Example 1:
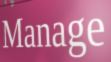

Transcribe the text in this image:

Manage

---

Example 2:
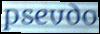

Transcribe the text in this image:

pseudo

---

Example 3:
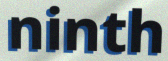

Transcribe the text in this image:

ninth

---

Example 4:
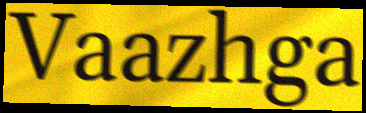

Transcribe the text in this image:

Vaazhga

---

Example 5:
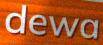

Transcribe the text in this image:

dewa